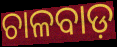
ଚାଳବାଡ଼